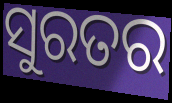
ସୁରତର